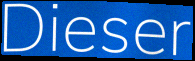
Dieser